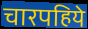
चारपहिये